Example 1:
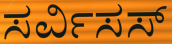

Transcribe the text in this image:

ಸರ್ವಿಸಸ್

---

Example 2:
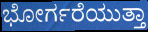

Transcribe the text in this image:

ಭೋರ್ಗರೆಯುತ್ತಾ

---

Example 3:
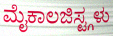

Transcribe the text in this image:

ಮೈಕಾಲಜಿಸ್ಟ್ಗಳು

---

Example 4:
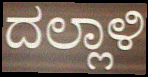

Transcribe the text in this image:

ದಲ್ಲಾಳಿ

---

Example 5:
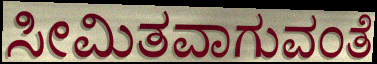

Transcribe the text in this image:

ಸೀಮಿತವಾಗುವಂತೆ